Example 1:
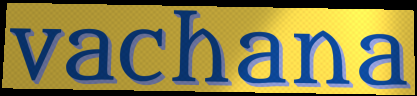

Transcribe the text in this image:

vachana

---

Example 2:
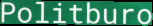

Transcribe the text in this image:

Politburo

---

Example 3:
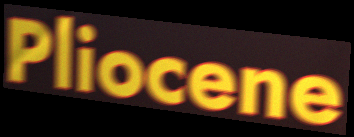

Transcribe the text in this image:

Pliocene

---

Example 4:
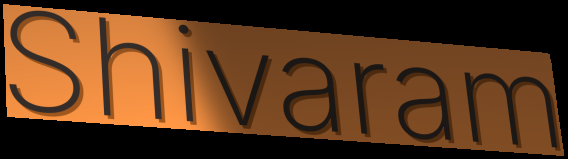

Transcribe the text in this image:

Shivaram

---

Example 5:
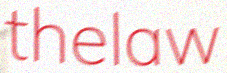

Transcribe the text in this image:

thelaw